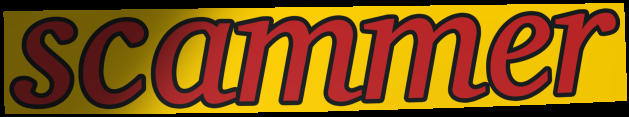
scammer